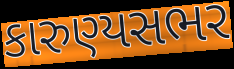
કારુણ્યસભર